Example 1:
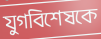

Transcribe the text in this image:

যুগবিশেষকে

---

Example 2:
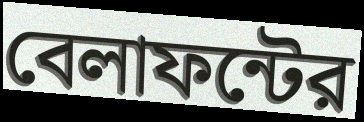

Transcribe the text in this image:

বেলাফন্টের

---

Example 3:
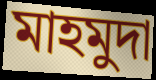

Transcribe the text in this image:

মাহমুদা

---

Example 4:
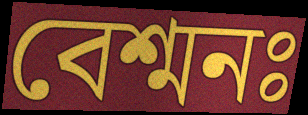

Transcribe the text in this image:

বেশ্মনঃ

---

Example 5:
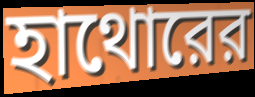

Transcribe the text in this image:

হাথোরের